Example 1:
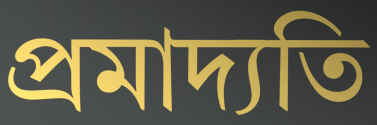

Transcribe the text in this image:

প্রমাদ্যতি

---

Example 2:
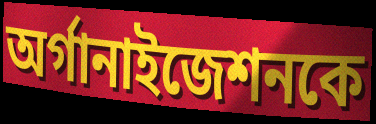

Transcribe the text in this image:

অর্গানাইজেশনকে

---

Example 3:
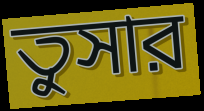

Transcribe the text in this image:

তুসার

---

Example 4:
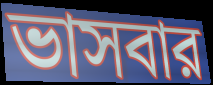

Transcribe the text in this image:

ভাসবার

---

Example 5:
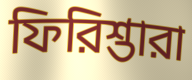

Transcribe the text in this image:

ফিরিশ্তারা